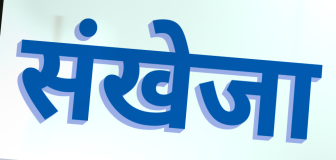
संखेजा